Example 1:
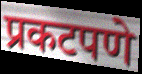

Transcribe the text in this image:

प्रकटपणे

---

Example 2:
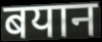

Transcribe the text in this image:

बयान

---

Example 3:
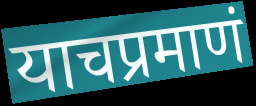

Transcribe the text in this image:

याचप्रमाणं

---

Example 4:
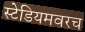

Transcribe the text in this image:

स्टेडियमवरच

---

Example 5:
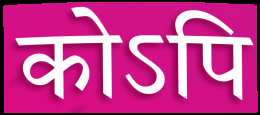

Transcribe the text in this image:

कोऽपि